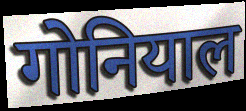
गोनियाल